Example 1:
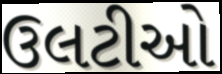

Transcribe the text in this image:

ઉલટીઓ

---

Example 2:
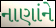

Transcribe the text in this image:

નાણાંને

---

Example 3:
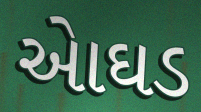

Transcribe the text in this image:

એાઘડ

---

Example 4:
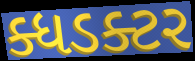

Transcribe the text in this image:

ક્ધડક્ટર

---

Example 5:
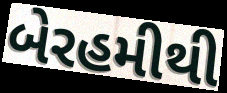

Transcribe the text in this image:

બેરહમીથી